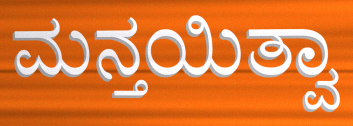
ಮನ್ತಯಿತ್ವಾ